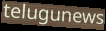
telugunews